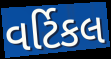
વર્ટિકલ